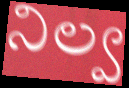
నిల్వ